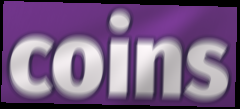
coins